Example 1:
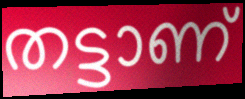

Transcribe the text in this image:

തട്ടാണ്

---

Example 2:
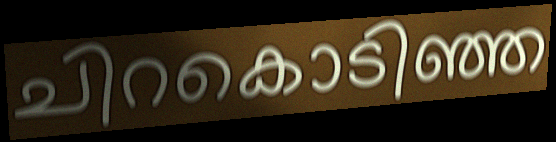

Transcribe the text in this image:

ചിറകൊടിഞ്ഞ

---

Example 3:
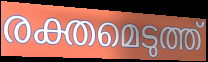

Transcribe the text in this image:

രക്തമെടുത്ത്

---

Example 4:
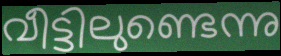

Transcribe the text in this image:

വീട്ടിലുണ്ടെന്നു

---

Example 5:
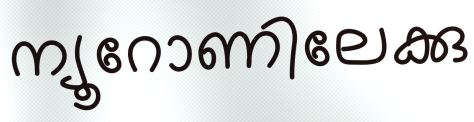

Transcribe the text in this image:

ന്യൂറോണിലേക്കു